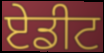
ਏਡੀਟ